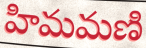
హిమమణి